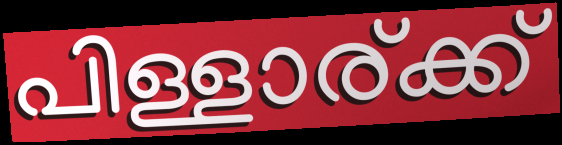
പിള്ളാര്ക്ക്